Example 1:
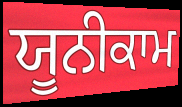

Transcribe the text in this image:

ਯੂਨੀਕਾਮ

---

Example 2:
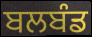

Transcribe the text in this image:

ਬਲਬੰਡ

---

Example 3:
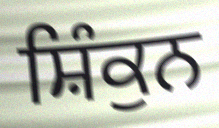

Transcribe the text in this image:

ਸ਼ਿੰਕੁਨ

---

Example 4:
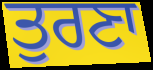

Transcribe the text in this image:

ਤੁਰਣਾ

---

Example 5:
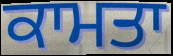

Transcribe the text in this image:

ਕਾਮਤਾ